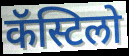
कॅस्टिलो